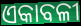
ଏକାବଳୀ